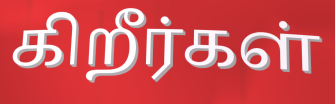
கிறீர்கள்